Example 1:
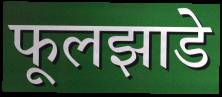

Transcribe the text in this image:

फूलझाडे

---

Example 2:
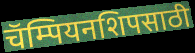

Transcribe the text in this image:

चॅम्पियनशिपसाठी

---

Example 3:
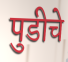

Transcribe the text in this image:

पुडीचे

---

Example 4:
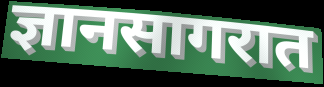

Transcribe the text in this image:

ज्ञानसागरात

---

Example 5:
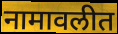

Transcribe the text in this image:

नामावलीत